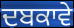
ਦਬਕਾਵੇ